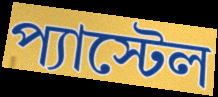
প্যাস্টেল